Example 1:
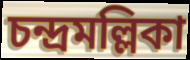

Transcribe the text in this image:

চন্দ্রমল্লিকা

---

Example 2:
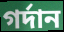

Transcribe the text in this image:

গর্দান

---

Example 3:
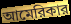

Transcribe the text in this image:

আমেরিকার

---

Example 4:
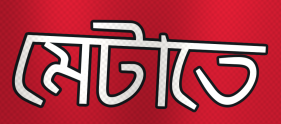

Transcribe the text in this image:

মেটাতে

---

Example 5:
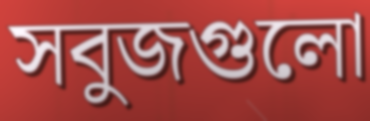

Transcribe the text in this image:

সবুজগুলো